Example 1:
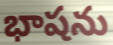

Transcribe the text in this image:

భాషను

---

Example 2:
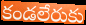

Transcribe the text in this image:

కండలేరుకు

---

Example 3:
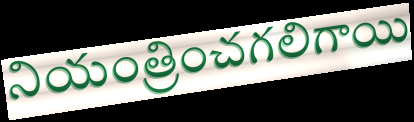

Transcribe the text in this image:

నియంత్రించగలిగాయి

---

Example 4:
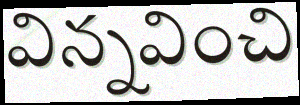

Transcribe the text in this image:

విన్నవించి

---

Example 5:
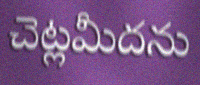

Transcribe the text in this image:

చెట్లమీదను